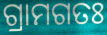
ଗ୍ରାମଗତଃ